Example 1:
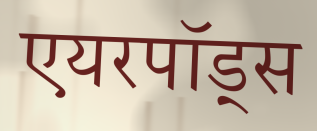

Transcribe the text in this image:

एयरपॉड्स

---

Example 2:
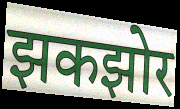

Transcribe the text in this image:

झकझोर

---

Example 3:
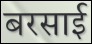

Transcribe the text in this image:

बरसाई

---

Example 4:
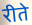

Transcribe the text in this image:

रीते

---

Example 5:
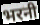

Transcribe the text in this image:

भरनी